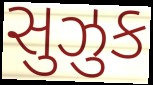
સુઝુક